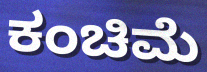
ಕಂಚಿಮೆ